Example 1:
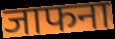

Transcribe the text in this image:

जाफना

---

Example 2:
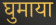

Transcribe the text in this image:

घुमाया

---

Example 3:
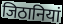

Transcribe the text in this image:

जिठानियां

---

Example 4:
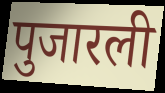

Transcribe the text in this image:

पुजारली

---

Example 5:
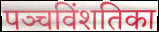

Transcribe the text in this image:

पञ्चविंशतिका